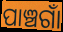
ପାଞ୍ଚଗାଁ